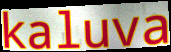
kaluva